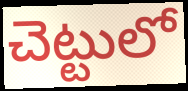
చెట్టులో